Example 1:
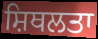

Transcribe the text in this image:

ਸ਼ਿਥਲਤਾ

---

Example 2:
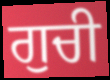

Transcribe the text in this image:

ਗੁਚੀ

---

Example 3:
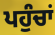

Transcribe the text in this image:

ਪਹੁੰਚਾਂ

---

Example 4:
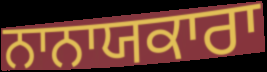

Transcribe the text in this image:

ਨਾਨਾਯਕਾਰਾ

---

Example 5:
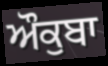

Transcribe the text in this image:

ਔਕੁਬਾ